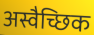
अस्वैच्छिक